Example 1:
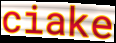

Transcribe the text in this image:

ciake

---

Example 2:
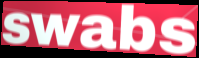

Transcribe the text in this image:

swabs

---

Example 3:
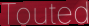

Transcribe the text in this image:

Touted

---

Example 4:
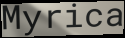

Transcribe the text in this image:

Myrica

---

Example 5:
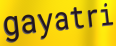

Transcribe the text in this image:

gayatri